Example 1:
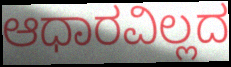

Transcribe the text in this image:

ಆಧಾರವಿಲ್ಲದ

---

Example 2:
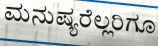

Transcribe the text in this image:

ಮನುಷ್ಯರೆಲ್ಲರಿಗೂ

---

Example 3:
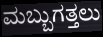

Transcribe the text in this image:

ಮಬ್ಬುಗತ್ತಲು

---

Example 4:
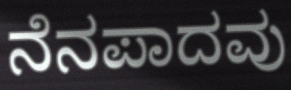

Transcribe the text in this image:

ನೆನಪಾದವು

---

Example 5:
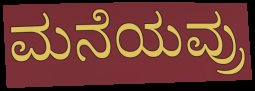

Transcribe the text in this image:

ಮನೆಯವ್ರು